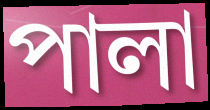
পালা